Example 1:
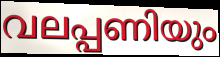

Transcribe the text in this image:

വലപ്പണിയും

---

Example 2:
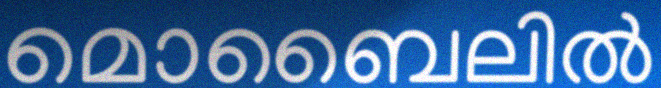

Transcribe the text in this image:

മൊബൈലിൽ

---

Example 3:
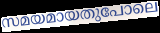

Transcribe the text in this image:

സമയമായതുപോലെ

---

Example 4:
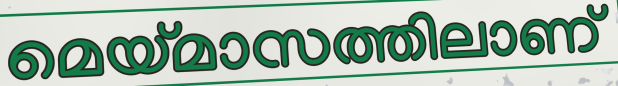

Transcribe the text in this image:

മെയ്മാസത്തിലാണ്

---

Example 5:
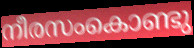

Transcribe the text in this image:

നീരസംകൊണ്ടു